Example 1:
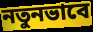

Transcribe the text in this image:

নতুনভাবে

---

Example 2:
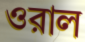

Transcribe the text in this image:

ওরাল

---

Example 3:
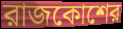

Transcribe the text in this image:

রাজকোশের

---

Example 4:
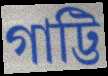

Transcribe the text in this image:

গাট্টি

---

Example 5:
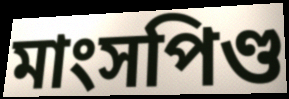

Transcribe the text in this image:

মাংসপিণ্ড